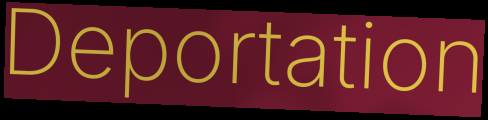
Deportation